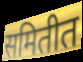
समितीत